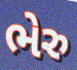
ભેરુ